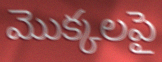
మొక్కలపై